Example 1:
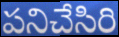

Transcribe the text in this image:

పనిచేసిరి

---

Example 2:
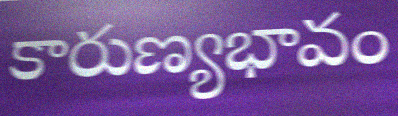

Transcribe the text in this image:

కారుణ్యభావం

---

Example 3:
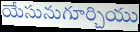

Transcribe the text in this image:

యేసునుగూర్చియు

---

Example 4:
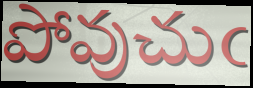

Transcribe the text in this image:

పోవుచుఁ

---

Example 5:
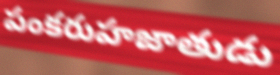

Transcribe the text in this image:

పంకరుహజాతుడు